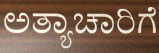
ಅತ್ಯಾಚಾರಿಗೆ